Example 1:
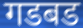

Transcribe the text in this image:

गडबड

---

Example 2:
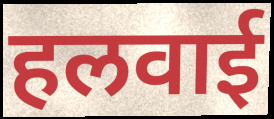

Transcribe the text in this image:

हलवाई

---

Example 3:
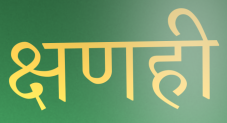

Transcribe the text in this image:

क्षणही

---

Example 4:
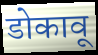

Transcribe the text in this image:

डोकावू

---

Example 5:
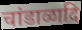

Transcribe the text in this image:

चांडाळादि